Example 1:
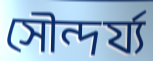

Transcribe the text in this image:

সৌন্দৰ্য্য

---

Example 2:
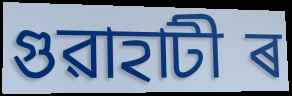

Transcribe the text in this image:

গুৱাহাটীৰ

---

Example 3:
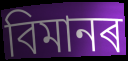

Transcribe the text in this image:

বিমানৰ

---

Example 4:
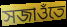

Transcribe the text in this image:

সজাওঁতে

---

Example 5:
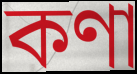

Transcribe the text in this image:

কণা